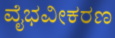
ವೈಭವೀಕರಣ